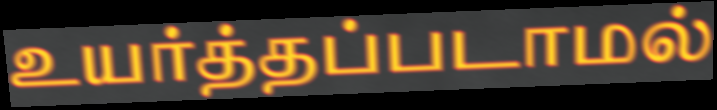
உயர்த்தப்படாமல்